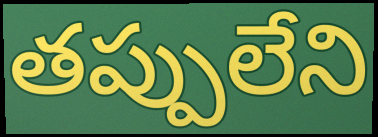
తప్పులేని